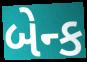
બેન્ક